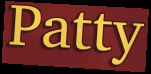
Patty